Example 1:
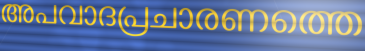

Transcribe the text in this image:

അപവാദപ്രചാരണത്തെ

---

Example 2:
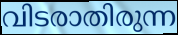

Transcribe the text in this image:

വിടരാതിരുന്ന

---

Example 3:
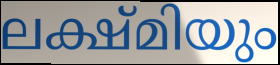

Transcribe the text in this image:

ലക്ഷ്മിയും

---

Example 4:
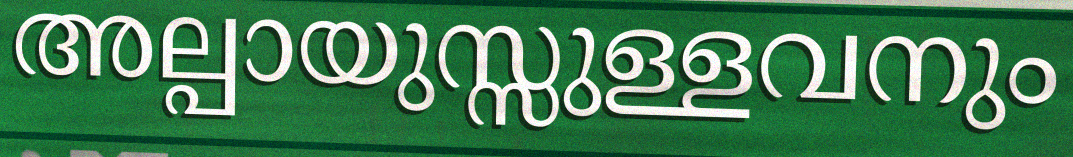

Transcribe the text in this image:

അല്പായുസ്സുള്ളവനും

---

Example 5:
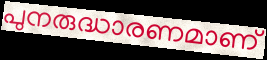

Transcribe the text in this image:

പുനരുദ്ധാരണമാണ്